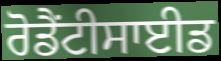
ਰੋਡੈਂਟੀਸਾਈਡ